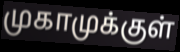
முகாமுக்குள்